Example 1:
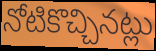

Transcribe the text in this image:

నోటికొచ్చినట్లు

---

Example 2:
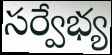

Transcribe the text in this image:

సర్వేభ్య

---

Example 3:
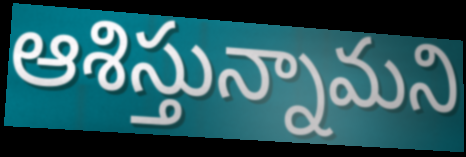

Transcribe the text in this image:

ఆశిస్తున్నామని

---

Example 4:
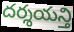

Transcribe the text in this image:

దర్శయన్తి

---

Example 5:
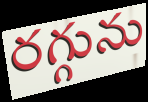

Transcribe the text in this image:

రగ్గును